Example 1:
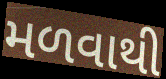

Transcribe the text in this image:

મળવાથી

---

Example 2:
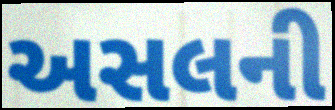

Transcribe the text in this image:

અસલની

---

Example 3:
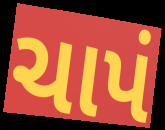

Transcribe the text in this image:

ચાપં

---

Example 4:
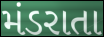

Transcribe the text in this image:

મંડરાતા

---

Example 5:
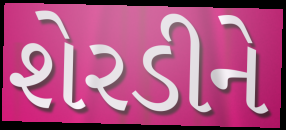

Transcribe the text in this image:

શેરડીને